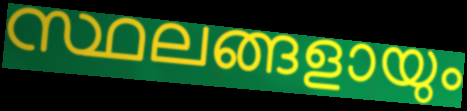
സ്ഥലങ്ങളായും